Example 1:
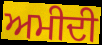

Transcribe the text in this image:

ਅਮੀਦੀ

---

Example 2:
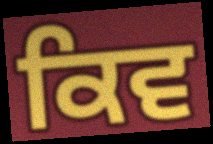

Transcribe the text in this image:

ਕਿਵ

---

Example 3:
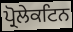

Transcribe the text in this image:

ਪ੍ਰੋਲੇਕਟਿਨ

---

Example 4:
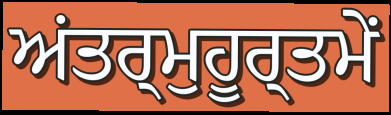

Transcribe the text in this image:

ਅਂਤਰ੍ਮੁਹੂਰ੍ਤਮੇਂ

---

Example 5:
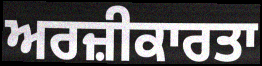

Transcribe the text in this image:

ਅਰਜ਼ੀਕਾਰਤਾ